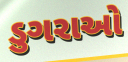
ડુગરાઓ